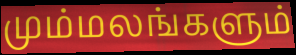
மும்மலங்களும்